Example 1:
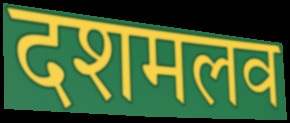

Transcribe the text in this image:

दशमलव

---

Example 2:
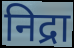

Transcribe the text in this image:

निद्रा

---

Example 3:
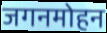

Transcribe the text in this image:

जगनमोहन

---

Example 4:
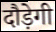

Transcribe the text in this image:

दौड़ेगी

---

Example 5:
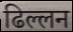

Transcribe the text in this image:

ढिल्लन